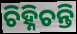
ଚିହ୍ନିଚନ୍ତି